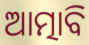
ଆତ୍ମାବି